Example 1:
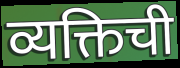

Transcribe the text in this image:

व्यक्तिची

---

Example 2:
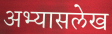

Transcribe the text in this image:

अभ्यासलेख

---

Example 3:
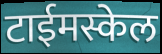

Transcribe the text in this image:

टाईमस्केल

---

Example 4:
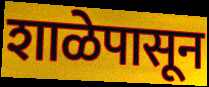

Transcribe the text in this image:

शाळेपासून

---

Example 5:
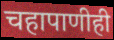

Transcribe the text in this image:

चहापाणीही